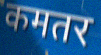
कमतर